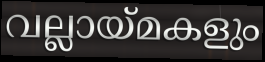
വല്ലായ്മകളും